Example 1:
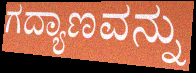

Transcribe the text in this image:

ಗದ್ಯಾಣವನ್ನು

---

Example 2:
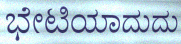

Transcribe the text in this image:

ಭೇಟಿಯಾದುದು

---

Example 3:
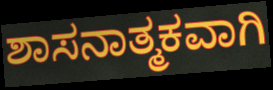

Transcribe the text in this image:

ಶಾಸನಾತ್ಮಕವಾಗಿ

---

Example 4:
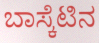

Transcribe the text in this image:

ಬಾಸ್ಕೆಟಿನ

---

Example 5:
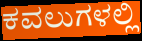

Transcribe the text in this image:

ಕವಲುಗಳಲ್ಲಿ